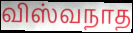
விஸ்வநாத